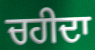
ਚਹੀਦਾ